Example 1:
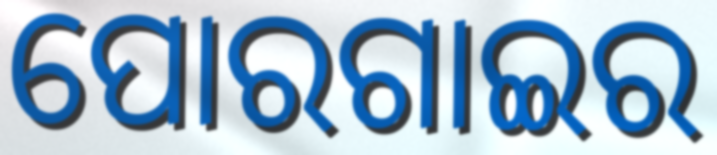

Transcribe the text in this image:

ପୋରଗାଇର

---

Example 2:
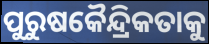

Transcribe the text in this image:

ପୁରୁଷକୈନ୍ଦ୍ରିକତାକୁ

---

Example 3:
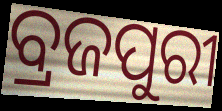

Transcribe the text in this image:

ବ୍ରଜପୁରୀ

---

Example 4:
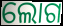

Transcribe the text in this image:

ଲୋଗ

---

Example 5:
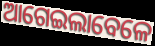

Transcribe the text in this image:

ଆଗେଇଲାବେଳେ